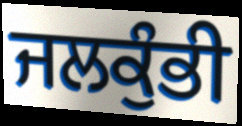
ਜਲਕੁੰਭੀ